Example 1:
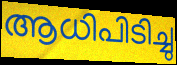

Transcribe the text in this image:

ആധിപിടിച്ചു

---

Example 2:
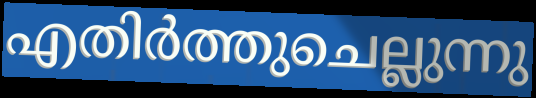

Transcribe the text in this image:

എതിർത്തുചെല്ലുന്നു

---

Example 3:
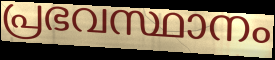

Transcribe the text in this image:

പ്രഭവസ്ഥാനം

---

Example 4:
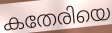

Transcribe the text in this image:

കതേരിയെ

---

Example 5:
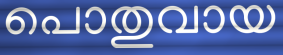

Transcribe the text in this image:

പൊതുവായ